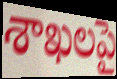
శాఖలపై